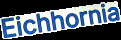
Eichhornia